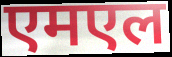
एमएल